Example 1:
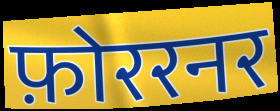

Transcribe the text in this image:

फ़ोररनर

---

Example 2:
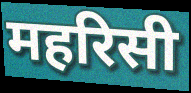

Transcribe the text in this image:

महरिसी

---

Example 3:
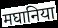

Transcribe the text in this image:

मघानिया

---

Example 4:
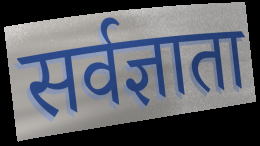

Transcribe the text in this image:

सर्वज्ञाता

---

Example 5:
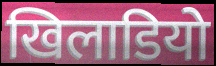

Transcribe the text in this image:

खिलाडियो